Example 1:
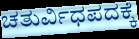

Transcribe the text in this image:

ಚತುರ್ವಿಧಪದಕ್ಕೆ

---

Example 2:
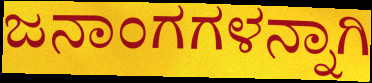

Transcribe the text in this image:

ಜನಾಂಗಗಳನ್ನಾಗಿ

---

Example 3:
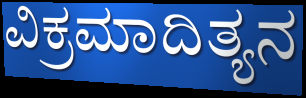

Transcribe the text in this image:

ವಿಕ್ರಮಾದಿತ್ಯನ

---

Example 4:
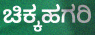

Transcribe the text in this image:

ಚಿಕ್ಕಹಗರಿ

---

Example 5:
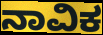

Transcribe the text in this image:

ನಾವಿಕ